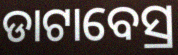
ଡାଟାବେସ୍ର